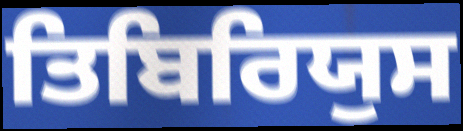
ਤਿਬਿਰਿਯੁਸ